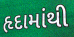
હૃદામાંથી